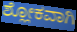
ಶ್ಲೋಕವಾಗಿ